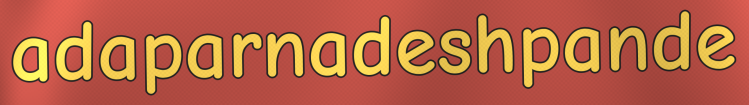
adaparnadeshpande